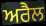
ਅਰੈਲ